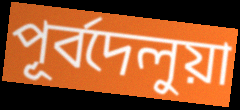
পূর্বদেলুয়া